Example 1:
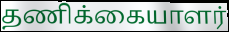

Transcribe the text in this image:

தணிக்கையாளர்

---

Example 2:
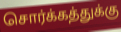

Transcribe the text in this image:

சொர்க்கத்துக்கு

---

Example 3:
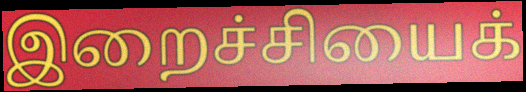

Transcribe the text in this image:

இறைச்சியைக்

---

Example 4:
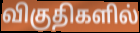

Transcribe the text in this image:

விகுதிகளில்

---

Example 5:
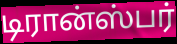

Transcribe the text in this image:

டிரான்ஸ்பர்